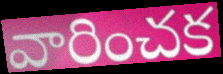
వారించక